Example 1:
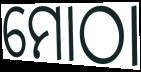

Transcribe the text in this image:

ମୋଠା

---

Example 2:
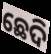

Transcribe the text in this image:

ଛେଦି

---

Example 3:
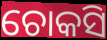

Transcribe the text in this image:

ଚୋକସି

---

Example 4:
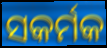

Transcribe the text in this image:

ସକର୍ମକ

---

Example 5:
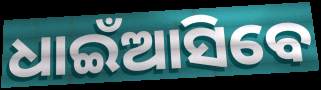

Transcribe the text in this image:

ଧାଇଁଆସିବେ